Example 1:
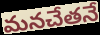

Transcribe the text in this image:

మనచేతనే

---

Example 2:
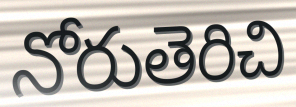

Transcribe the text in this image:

నోరుతెరిచి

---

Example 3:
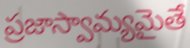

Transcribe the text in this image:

ప్రజాస్వామ్యమైతే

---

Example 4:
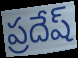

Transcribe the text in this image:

ప్రదేష్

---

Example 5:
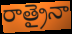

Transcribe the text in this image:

రాత్రైనా